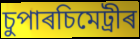
চুপাৰচিমেট্ৰীৰ